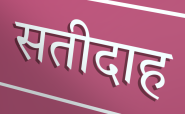
सतीदाह